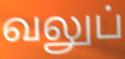
வலுப்